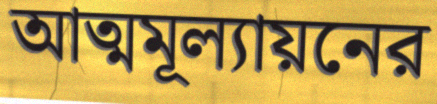
আত্মমূল্যায়নের